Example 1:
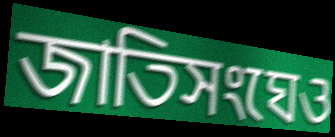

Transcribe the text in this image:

জাতিসংঘেও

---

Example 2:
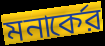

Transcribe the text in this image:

মনার্কের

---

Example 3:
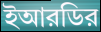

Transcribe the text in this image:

ইআরডির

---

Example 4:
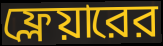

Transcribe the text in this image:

ফ্লেয়ারের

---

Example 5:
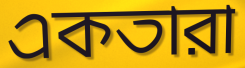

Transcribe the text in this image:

একতারা